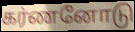
கர்ணனோடு